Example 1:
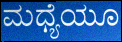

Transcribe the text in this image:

ಮಧ್ಯೆಯೂ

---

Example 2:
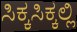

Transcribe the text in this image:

ಸಿಕ್ಕಸಿಕ್ಕಲ್ಲಿ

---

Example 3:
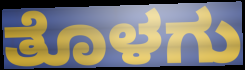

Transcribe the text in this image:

ತೊಳಗು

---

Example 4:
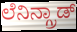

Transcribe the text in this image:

ಲೆನಿನ್ಗ್ರಾಡ್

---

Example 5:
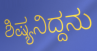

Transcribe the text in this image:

ಶಿಷ್ಯನಿದ್ದನು